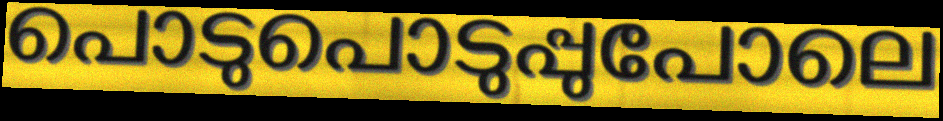
പൊടുപൊടുപ്പുപോലെ